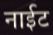
नाईट